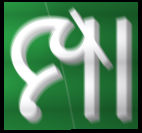
ମ୍ପା